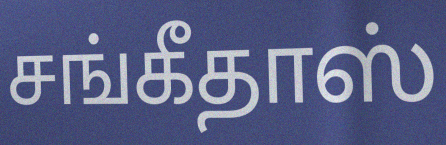
சங்கீதாஸ்